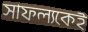
সাফল্যকেই